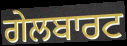
ਗੇਲਬਾਰਟ